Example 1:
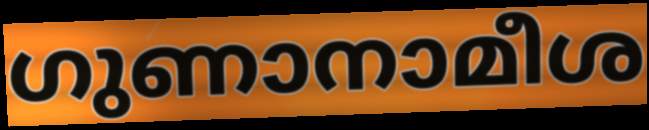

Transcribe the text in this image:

ഗുണാനാമീശ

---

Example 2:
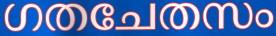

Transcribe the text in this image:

ഗതചേതസം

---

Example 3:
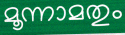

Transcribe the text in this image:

മൂന്നാമതും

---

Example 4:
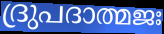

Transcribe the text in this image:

ദ്രുപദാത്മജഃ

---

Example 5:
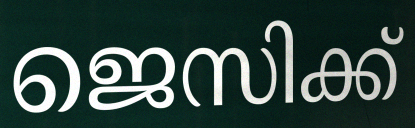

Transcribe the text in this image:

ജെസിക്ക്